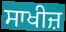
ਸਾਖੀਜ਼